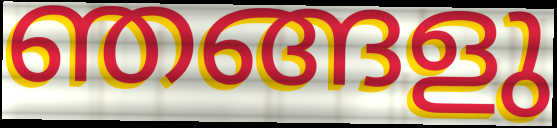
ഞങ്ങളു